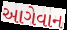
આગેવાન